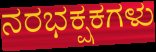
ನರಭಕ್ಷಕಗಳು